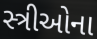
સ્ત્રીઓના